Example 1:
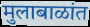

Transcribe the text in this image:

मुलाबाळांत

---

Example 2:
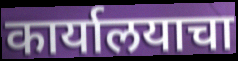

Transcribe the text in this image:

कार्यालयाचा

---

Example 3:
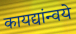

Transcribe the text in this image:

कायद्यांन्वये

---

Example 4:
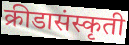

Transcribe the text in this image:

क्रीडासंस्कृती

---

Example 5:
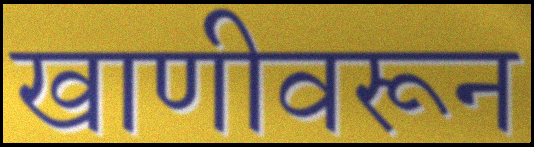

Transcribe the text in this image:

खाणीवरून